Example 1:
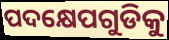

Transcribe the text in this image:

ପଦକ୍ଷେପଗୁଡିକୁ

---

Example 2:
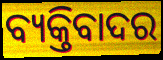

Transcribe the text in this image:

ବ୍ୟକ୍ତିବାଦର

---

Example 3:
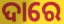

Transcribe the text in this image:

ଦାରେ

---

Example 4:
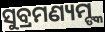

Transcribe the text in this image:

ସୁବ୍ରମଣ୍ୟମ୍ଙ୍କ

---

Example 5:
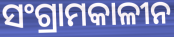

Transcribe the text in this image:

ସଂଗ୍ରାମକାଳୀନ